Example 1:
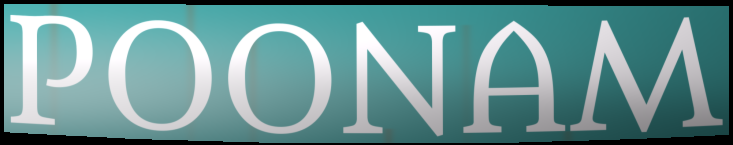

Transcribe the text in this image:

POONAM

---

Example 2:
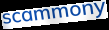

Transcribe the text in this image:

scammony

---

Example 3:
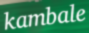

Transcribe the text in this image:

kambale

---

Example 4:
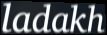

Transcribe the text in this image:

ladakh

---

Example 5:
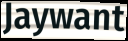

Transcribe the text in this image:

Jaywant